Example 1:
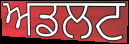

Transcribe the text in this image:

ਅਡਲਟ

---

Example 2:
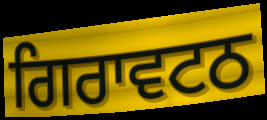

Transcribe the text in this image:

ਗਿਰਾਵਟਠ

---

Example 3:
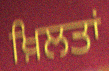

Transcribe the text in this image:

ਖ਼ਿਲਤਾਂ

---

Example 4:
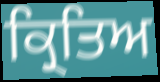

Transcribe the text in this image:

ਕ੍ਰਿਤਿਅ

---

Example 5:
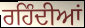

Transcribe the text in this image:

ਰਹਿੰਦੀਆਂ